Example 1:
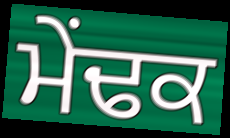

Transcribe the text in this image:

ਮੇਂਢਕ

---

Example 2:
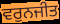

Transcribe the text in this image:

ਵਰੁਨਜੀਤ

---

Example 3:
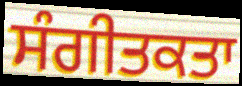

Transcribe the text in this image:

ਸੰਗੀਤਕਤਾ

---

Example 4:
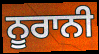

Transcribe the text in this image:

ਨੂਰਾਨੀ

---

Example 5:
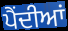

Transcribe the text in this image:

ਪੈਂਦੀਆਂ